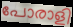
പോരാളി